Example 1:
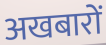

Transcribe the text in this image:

अखबारों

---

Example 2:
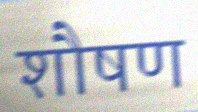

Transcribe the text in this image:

शौषण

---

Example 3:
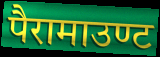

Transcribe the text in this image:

पैरामाउण्ट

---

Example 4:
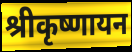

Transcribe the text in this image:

श्रीकृष्णायन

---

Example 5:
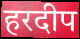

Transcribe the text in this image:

हरदीप